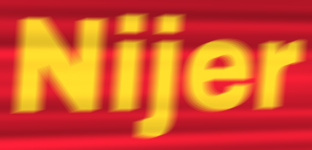
Nijer